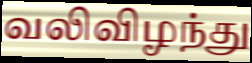
வலிவிழந்து